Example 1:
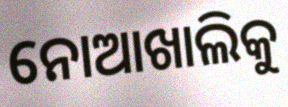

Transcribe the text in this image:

ନୋଆଖାଲିକୁ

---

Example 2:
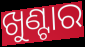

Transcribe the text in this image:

ଖୁଣ୍ଟାର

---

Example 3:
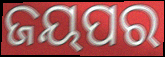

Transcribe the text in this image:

ଜୟପର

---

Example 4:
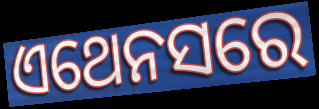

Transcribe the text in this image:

ଏଥେନସରେ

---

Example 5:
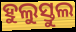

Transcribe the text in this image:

ହୁଲୁସ୍ତୁଲ